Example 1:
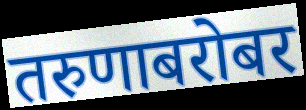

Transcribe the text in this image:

तरुणाबरोबर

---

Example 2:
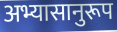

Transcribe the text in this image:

अभ्यासानुरूप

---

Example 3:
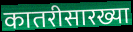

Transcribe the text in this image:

कातरीसारख्या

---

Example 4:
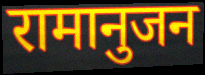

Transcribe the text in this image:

रामानुजन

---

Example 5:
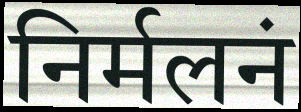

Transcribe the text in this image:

निर्मलनं